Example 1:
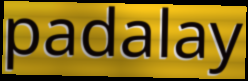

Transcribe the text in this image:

padalay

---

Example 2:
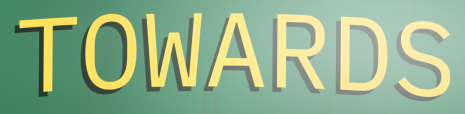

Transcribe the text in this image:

TOWARDS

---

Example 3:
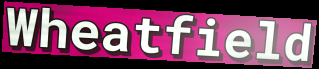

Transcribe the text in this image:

Wheatfield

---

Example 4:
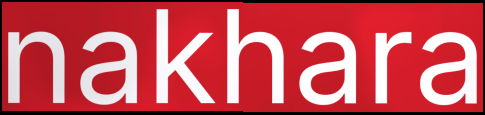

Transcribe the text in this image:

nakhara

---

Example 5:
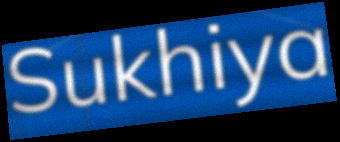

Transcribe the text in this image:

Sukhiya